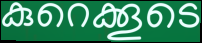
കുറെക്കൂടെ